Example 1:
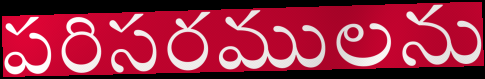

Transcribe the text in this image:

పరిసరములను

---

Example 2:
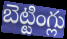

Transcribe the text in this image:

బెట్టింగ్లు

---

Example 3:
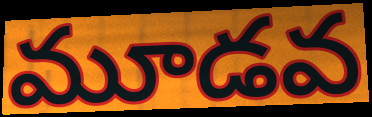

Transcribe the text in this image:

మూడవ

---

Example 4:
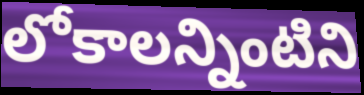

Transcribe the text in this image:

లోకాలన్నింటిని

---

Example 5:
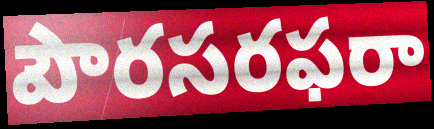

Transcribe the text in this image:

పౌరసరఫరా